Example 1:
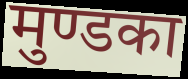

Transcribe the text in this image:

मुण्डका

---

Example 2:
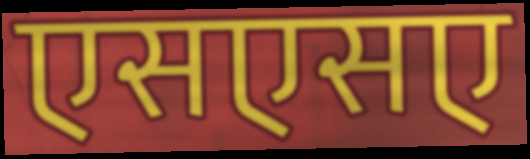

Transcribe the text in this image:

एसएसए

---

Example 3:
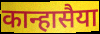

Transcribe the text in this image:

कान्हासैया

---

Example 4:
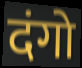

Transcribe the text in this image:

दंगो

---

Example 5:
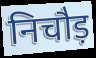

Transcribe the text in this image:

निचौड़